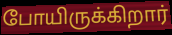
போயிருக்கிறார்